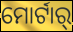
ମୋର୍ଟାର୍